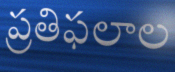
ప్రతిఫలాల